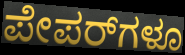
ಪೇಪರ್‌ಗಳೂ